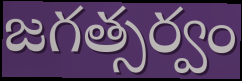
జగత్సర్వం